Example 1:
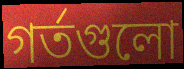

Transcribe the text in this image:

গর্তগুলো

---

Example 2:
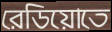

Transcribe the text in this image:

রেডিয়োতে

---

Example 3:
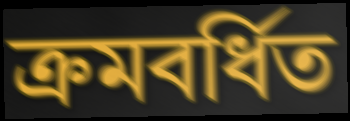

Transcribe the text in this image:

ক্রমবর্ধিত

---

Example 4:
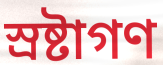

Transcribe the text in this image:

স্রষ্টাগণ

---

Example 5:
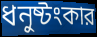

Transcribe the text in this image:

ধনুষ্টংকার